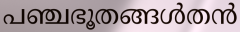
പഞ്ചഭൂതങ്ങൾതൻ